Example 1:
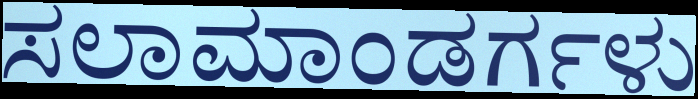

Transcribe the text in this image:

ಸಲಾಮಾಂಡರ್ಗಳು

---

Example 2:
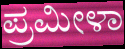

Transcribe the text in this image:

ಪ್ರಮೀಳಾ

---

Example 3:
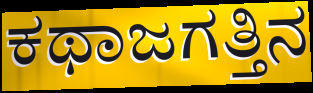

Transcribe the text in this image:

ಕಥಾಜಗತ್ತಿನ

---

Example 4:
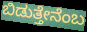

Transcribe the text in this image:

ಬಿಡುತ್ತೇನೆಂಬ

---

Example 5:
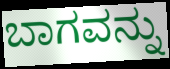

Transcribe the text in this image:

ಬಾಗವನ್ನು